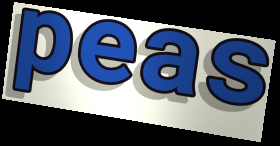
peas